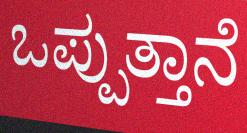
ಒಪ್ಪುತ್ತಾನೆ